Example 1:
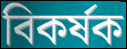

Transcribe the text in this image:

বিকৰ্ষক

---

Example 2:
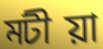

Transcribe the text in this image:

মটীয়া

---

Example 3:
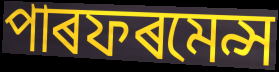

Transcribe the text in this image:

পাৰফৰমেন্স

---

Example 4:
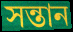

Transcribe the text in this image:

সন্তান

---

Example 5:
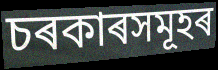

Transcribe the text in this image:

চৰকাৰসমূহৰ